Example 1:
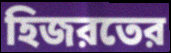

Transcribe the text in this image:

হিজরতের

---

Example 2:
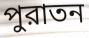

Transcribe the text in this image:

পুরাতন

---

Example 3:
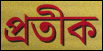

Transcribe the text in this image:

প্রতীক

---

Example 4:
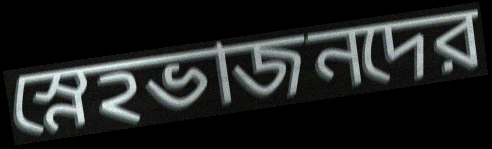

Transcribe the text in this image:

স্নেহভাজনদের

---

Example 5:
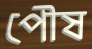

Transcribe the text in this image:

পৌষ